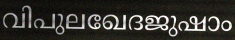
വിപുലഖേദജുഷാം